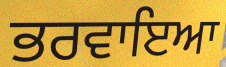
ਭਰਵਾਇਆ